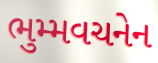
ભુમ્મવચનેન